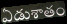
ఏడుశాతం